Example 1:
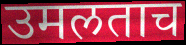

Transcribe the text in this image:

उमलताच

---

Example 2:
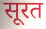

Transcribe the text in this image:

सूरत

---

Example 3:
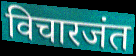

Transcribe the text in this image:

विचारजंत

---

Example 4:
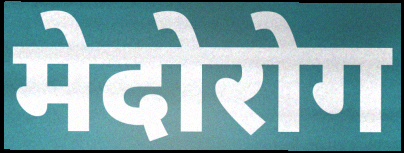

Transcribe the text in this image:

मेदोरोग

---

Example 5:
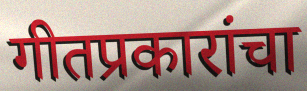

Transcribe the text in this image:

गीतप्रकारांचा